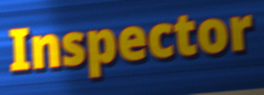
Inspector